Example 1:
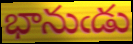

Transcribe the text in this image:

భానుఁడు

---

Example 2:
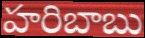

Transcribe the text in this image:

హరిబాబు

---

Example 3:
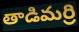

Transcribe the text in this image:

తాడిమర్రి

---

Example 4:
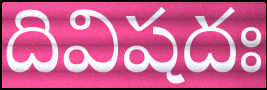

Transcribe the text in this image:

దివిషదః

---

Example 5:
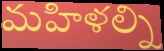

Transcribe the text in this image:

మహిళల్ని